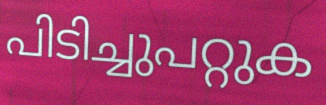
പിടിച്ചുപറ്റുക